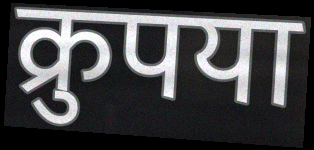
क्रुपया